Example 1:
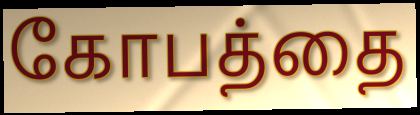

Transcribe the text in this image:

கோபத்தை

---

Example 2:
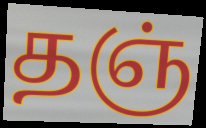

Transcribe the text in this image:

தஞ்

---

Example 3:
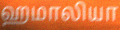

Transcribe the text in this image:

ஹமாலியா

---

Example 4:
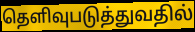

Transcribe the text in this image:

தெளிவுபடுத்துவதில்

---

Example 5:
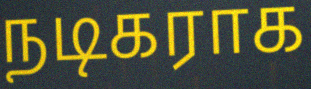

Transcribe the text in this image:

நடிகராக